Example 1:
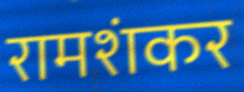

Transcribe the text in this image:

रामशंकर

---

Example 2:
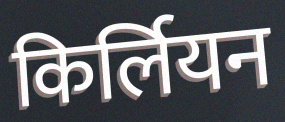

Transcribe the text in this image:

किर्लियन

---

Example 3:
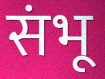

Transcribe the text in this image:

संभू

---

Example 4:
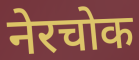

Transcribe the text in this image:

नेरचोक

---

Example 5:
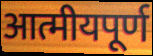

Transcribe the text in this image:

आत्मीयपूर्ण